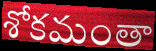
శోకమంతా